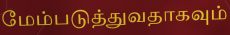
மேம்படுத்துவதாகவும்